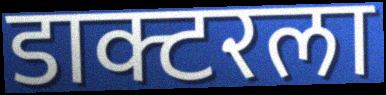
डाक्टरला